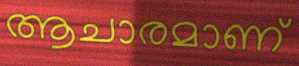
ആചാരമാണ്